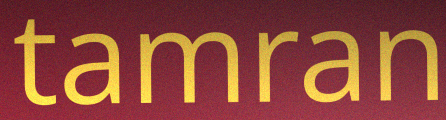
tamran